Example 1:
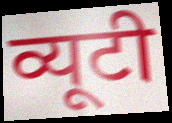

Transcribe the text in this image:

व्यूटी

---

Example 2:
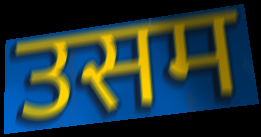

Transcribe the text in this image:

उसम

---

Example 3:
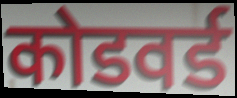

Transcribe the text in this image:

कोडवर्ड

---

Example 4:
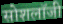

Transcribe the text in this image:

सोशलॉजी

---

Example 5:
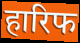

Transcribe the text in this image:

हारिफ